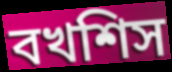
বখশিস